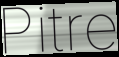
Pitre